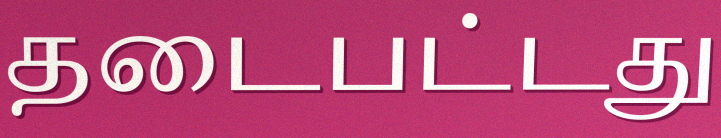
தடைபட்டது